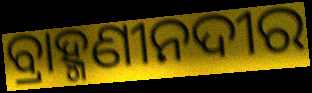
ବ୍ରାହ୍ମଣୀନଦୀର